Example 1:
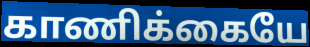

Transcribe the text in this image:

காணிக்கையே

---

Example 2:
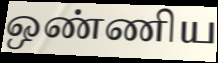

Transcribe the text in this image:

ஒண்ணிய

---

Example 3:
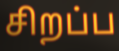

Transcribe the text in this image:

சிறப்ப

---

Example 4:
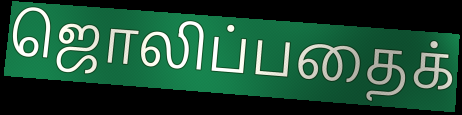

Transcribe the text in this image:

ஜொலிப்பதைக்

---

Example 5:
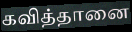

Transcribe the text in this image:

கவித்தானை